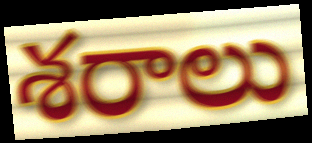
శరాలు